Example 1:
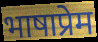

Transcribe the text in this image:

भाषाप्रेम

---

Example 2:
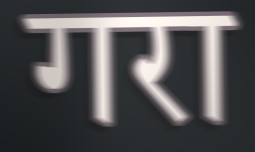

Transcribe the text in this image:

गरा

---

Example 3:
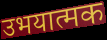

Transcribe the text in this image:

उभयात्मक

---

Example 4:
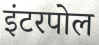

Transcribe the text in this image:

इंटरपोल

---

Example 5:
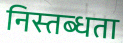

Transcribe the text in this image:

निस्तब्धता